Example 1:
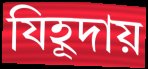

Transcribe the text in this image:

যিহূদায়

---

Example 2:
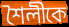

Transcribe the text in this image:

শৈলীকে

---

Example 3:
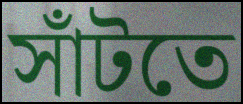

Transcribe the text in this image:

সাঁটতে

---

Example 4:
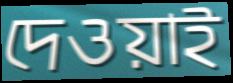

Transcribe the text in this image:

দেওয়াই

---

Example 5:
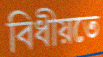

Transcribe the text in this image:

বিধীয়তে